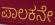
ಪಾಲಕನೇ